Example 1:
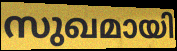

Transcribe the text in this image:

സുഖമായി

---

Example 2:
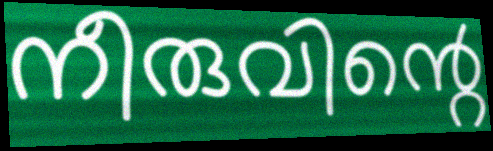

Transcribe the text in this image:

നീരുവിന്റെ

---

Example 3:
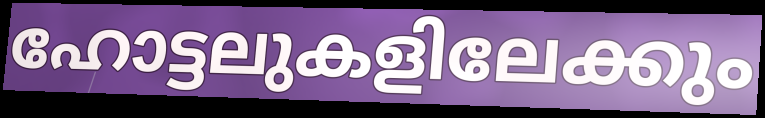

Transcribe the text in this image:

ഹോട്ടലുകളിലേക്കും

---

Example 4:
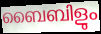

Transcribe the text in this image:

ബൈബിളും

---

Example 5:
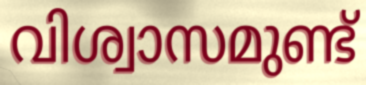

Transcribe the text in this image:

വിശ്വാസമുണ്ട്